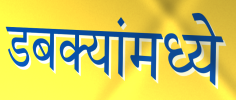
डबक्यांमध्ये